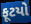
ફૂટયો